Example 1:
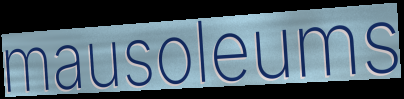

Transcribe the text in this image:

mausoleums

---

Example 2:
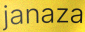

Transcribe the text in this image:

janaza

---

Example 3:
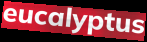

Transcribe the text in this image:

eucalyptus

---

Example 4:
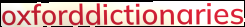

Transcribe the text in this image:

oxforddictionaries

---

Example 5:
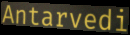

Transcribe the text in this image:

Antarvedi